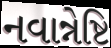
નવાન્નેષ્ટિ